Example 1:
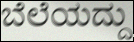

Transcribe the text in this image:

ಬೆಲೆಯದ್ದು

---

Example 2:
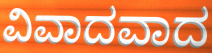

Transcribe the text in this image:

ವಿವಾದವಾದ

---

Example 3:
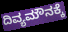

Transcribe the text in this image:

ದಿವ್ಯಮೌನಕ್ಕೆ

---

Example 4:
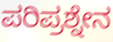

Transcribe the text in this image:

ಪರಿಪ್ರಶ್ನೇನ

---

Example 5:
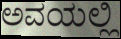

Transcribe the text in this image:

ಅವಯಲ್ಲಿ